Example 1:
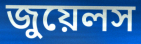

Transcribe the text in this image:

জুয়েলস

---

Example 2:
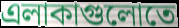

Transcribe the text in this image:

এলাকাগুলোতে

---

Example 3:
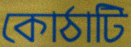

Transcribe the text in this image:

কোঠাটি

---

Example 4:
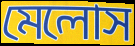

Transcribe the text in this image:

মেলোস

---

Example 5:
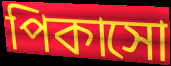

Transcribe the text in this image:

পিকাসো